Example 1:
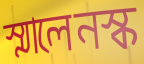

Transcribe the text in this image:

স্মালেনস্ক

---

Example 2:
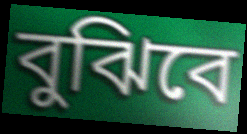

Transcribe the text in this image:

বুঝিবে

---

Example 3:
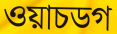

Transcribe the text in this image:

ওয়াচডগ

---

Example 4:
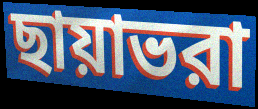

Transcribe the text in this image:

ছায়াভরা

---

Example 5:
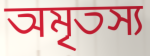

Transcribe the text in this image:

অমৃতস্য